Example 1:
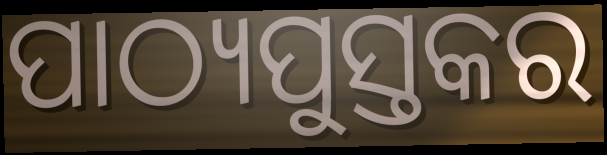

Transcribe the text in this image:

ପାଠ୍ୟପୁସ୍ତକର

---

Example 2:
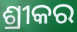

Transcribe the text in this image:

ଶ୍ରୀକର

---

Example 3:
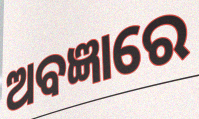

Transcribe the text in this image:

ଅବଜ୍ଞାରେ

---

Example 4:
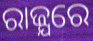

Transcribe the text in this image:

ରାଜ୍ଯରେ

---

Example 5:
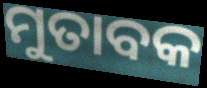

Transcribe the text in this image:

ମୁତାବକ